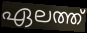
ഏലത്ത്